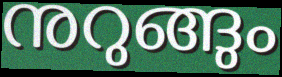
നുറുങ്ങും